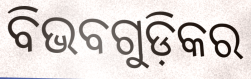
ବିଭବଗୁଡ଼ିକର